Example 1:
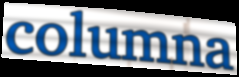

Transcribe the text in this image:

columna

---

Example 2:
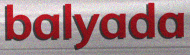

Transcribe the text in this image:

balyada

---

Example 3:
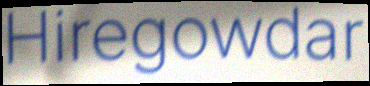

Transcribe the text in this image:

Hiregowdar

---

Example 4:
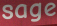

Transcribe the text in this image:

sage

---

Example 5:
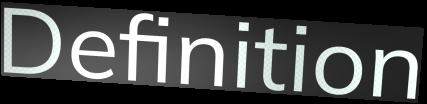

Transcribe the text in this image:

Definition